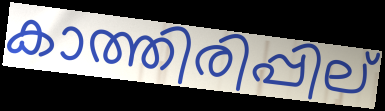
കാത്തിരിപ്പില്